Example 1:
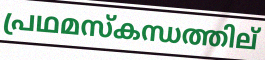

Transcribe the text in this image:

പ്രഥമസ്കന്ധത്തില്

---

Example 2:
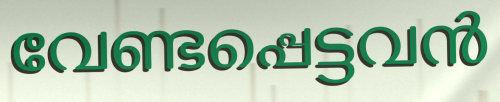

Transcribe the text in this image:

വേണ്ടപ്പെട്ടവൻ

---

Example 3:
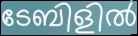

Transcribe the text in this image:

ടേബിളിൽ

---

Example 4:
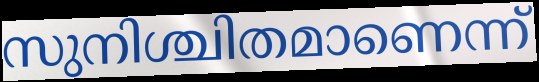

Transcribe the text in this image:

സുനിശ്ചിതമാണെന്ന്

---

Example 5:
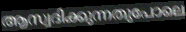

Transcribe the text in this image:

ആസ്വദിക്കുന്നതുപോലെ